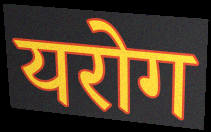
यरोग